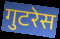
गुटरेस